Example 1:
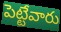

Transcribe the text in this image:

పెట్టేవారు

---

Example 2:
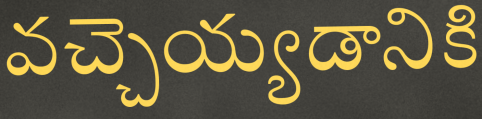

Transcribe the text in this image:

వచ్చెయ్యడానికి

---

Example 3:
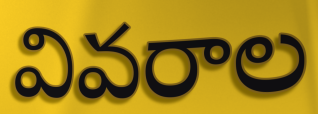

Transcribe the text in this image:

వివరాల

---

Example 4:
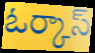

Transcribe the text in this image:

ఓర్కాస్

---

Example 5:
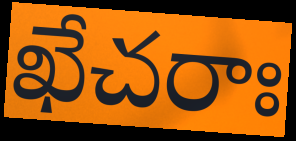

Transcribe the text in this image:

ఖేచరాః